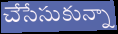
చేసేసుకున్నా